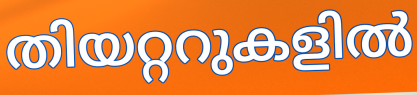
തിയറ്ററുകളിൽ